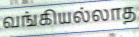
வங்கியல்லாத